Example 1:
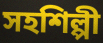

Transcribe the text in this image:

সহশিল্পী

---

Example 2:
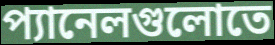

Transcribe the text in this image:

প্যানেলগুলোতে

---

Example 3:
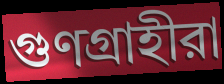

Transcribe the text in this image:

গুণগ্রাহীরা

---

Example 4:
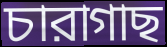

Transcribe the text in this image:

চারাগাছ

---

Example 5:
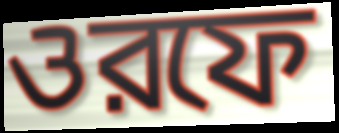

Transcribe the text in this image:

ওরফে